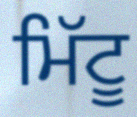
ਮਿੱਟੂ